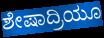
ಶೇಷಾದ್ರಿಯೂ